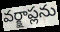
వర్క్షాప్లను